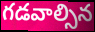
గడవాల్సిన